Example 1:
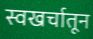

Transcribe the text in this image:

स्वखर्चातून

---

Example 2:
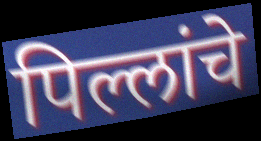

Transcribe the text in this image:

पिल्लांचे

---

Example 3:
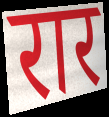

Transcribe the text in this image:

रार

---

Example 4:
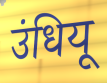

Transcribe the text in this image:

उंधियू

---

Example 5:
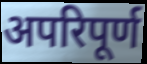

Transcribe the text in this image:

अपरिपूर्ण